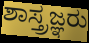
ಶಾಸ್ತ್ರಜ್ಞರು